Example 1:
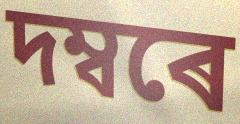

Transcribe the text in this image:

দম্বৰে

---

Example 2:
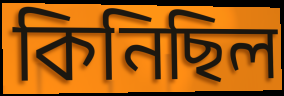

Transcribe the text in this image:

কিনিছিল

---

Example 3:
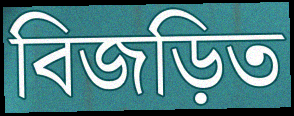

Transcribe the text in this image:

বিজড়িত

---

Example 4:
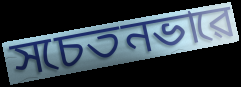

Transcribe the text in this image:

সচেতনভাৱে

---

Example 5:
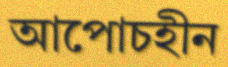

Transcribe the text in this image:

আপোচহীন